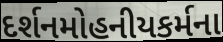
દર્શનમોહનીયકર્મના